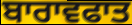
ਬਾਰਾਵਫਾਤ